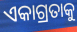
ଏକାଗ୍ରତାକୁ